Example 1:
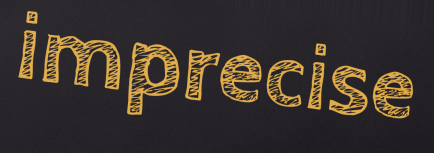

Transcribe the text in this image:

imprecise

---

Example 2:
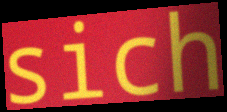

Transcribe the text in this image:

sich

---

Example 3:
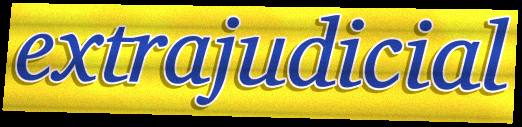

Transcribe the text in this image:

extrajudicial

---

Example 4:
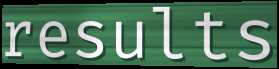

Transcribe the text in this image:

results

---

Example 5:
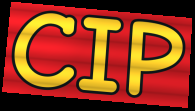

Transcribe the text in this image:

CIP